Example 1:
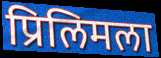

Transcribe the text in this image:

प्रिलिमला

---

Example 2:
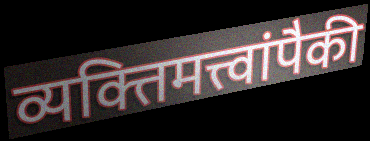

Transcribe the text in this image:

व्यक्तिमत्त्वांपैकी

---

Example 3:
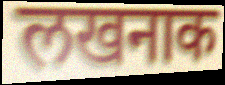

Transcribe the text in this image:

लखनाक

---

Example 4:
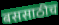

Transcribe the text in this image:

बससाठीच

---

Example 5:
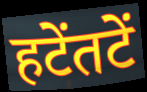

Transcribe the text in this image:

हटेंतटें